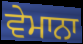
ਵੇਮਾਨਾ